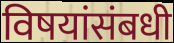
विषयांसंबधी